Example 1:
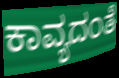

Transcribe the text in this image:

ಕಾವ್ಯದಂತೆ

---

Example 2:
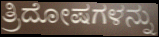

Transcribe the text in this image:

ತ್ರಿದೋಷಗಳನ್ನು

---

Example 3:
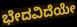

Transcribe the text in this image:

ಭೇದವಿದೆಯೇ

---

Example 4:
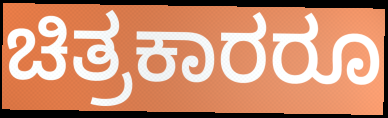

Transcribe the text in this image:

ಚಿತ್ರಕಾರರೂ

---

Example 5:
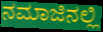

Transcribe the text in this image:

ನಮಾಜಿನಲ್ಲಿ